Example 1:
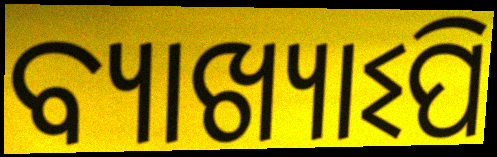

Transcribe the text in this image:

ବ୍ୟାଖ୍ୟାଽପି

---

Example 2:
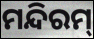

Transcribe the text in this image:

ମନ୍ଦିରମ୍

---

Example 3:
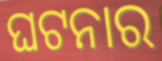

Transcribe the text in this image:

ଘଟନାର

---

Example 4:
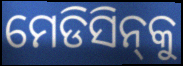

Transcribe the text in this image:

ମେଡିସିନ୍‌କୁ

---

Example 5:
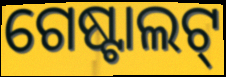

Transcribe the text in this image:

ଗେଷ୍ଟାଲଟ୍